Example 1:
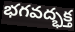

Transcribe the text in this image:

భగవద్భక్త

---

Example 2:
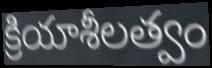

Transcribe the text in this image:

క్రియాశీలత్వం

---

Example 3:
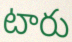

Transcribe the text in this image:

టారు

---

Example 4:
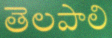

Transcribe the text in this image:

తెలపాలి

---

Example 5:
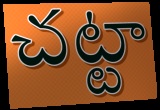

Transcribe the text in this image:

చట్టా